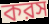
করস